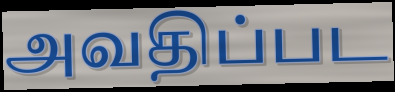
அவதிப்பட